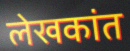
लेखकांत